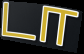
டா